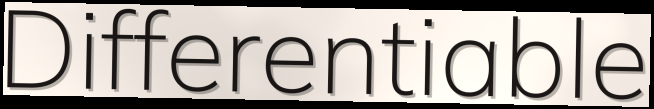
Differentiable